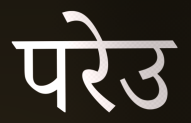
परेउ